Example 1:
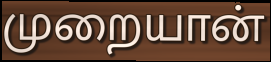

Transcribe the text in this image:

முறையான்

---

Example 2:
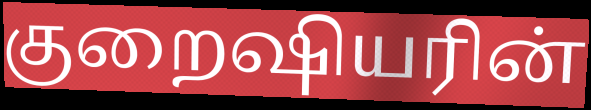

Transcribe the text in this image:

குறைஷியரின்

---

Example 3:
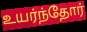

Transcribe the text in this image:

உயர்ந்தோர்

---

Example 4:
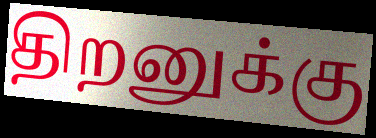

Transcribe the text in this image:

திறனுக்கு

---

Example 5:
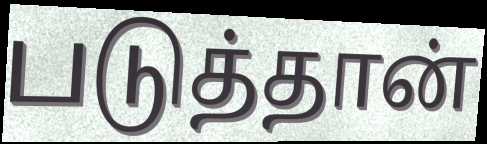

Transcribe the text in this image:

படுத்தான்